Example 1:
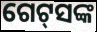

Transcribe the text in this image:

ଗେଟ୍‌ସଙ୍କ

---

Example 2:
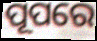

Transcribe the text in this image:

ପୂପରେ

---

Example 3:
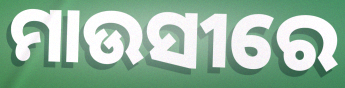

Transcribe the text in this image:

ମାଉସୀରେ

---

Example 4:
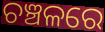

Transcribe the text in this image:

ଚଞ୍ଚଳରେ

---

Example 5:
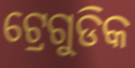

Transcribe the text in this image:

ଟ୍ରେଗୁଡିକ